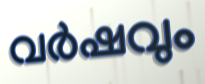
വർഷവും